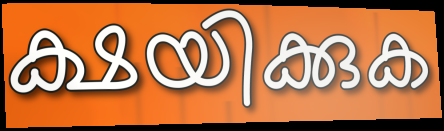
ക്ഷയിക്കുക